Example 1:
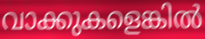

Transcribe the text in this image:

വാക്കുകളെങ്കിൽ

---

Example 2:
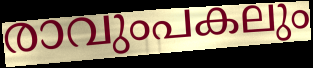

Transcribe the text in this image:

രാവുംപകലും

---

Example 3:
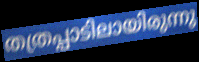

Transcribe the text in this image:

തത്രപ്പാടിലായിരുന്നു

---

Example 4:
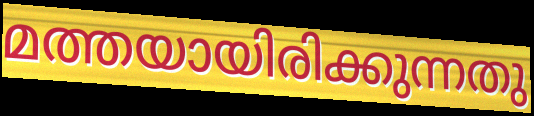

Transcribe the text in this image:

മത്തയായിരിക്കുന്നതു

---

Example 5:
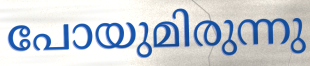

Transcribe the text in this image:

പോയുമിരുന്നു